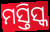
ମସ୍ତିସ୍କ